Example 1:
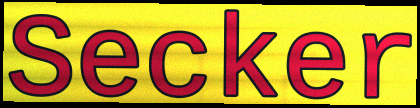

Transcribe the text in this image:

Secker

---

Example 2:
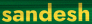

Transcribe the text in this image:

sandesh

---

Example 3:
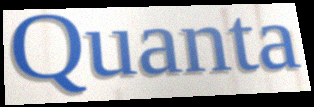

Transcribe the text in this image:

Quanta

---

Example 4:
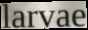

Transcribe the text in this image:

larvae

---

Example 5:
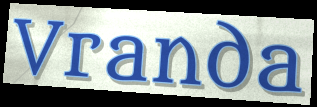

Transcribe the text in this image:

Vranda